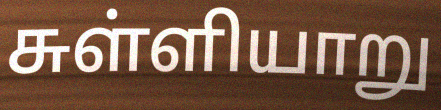
சுள்ளியாறு